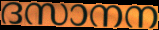
ദസാനന